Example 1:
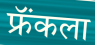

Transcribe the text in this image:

फ्रॅंकला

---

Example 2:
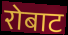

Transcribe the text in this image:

रोबाट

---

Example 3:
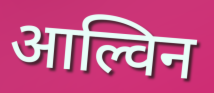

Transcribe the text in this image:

आल्विन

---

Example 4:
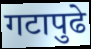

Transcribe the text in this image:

गटापुढे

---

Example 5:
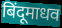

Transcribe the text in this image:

बिंदूमाधव